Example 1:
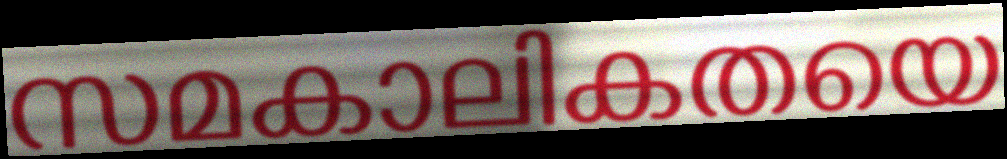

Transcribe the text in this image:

സമകാലികതയെ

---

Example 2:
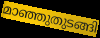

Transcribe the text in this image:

മാഞ്ഞുതുടങ്ങി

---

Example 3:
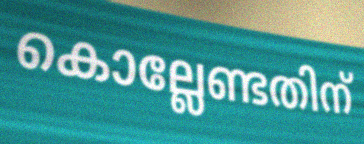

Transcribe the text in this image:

കൊല്ലേണ്ടതിന്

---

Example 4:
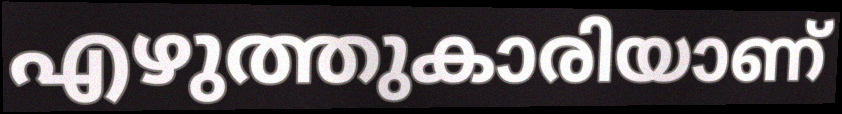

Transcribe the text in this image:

എഴുത്തുകാരിയാണ്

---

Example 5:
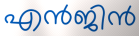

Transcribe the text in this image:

എൻജിൻ